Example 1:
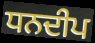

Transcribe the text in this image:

ਧਨਦੀਪ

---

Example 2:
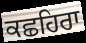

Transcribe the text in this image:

ਕਛਹਿਰਾ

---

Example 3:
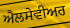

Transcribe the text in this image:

ਐਲਸੇਵੀਅਰ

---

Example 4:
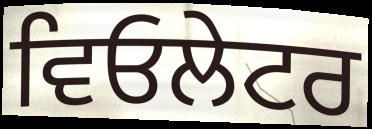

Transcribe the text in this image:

ਵਿਓਲੇਟਰ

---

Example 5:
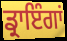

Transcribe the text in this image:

ਡ੍ਰਾਇੰਗਾਂ